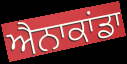
ਐਨਾਕਾਂਡਾ